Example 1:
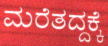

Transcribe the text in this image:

ಮರೆತದ್ದಕ್ಕೆ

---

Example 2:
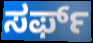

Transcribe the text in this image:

ಸರ್ಫ್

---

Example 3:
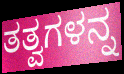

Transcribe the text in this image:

ತತ್ವಗಳನ್ನ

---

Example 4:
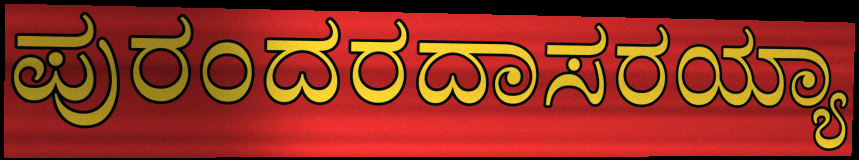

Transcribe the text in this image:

ಪುರಂದರದಾಸರಯ್ಯಾ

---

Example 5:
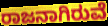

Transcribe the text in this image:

ರಾಜನಾಗಿರುವೆ